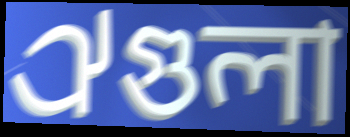
ঐগুলা